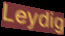
Leydig